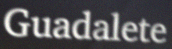
Guadalete